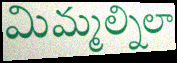
మిమ్మల్నిలా